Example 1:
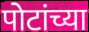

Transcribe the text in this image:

पोटांच्या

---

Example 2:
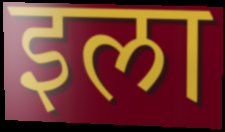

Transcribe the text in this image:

इला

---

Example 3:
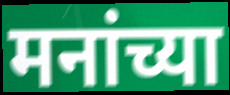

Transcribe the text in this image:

मनांच्या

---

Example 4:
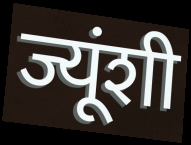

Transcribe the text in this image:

ज्यूंशी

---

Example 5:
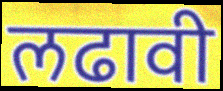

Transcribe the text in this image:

लढावी